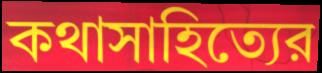
কথাসাহিত্যের